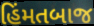
હિંમતબાજ